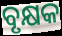
ବୃକ୍ଷକ